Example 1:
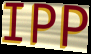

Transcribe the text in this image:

IPP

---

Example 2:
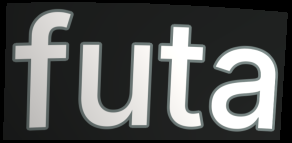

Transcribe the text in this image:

futa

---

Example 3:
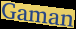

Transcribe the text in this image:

Gaman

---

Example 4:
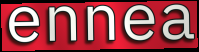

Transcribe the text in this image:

ennea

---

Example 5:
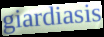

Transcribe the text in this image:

giardiasis